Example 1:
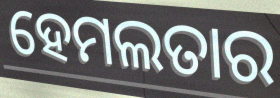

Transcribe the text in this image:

ହେମଲତାର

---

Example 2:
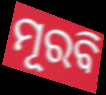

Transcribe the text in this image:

ମୂରବି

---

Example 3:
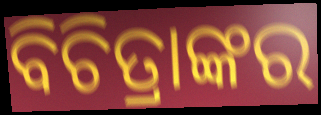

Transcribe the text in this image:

ବିଚିତ୍ରାଙ୍କର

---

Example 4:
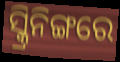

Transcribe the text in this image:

ସ୍କ୍ରିନିଙ୍ଗରେ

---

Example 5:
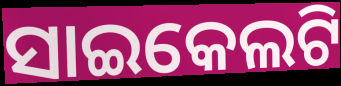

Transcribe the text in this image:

ସାଇକେଲଟି